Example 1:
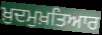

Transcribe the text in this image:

ਖ਼ੁਦਮੁਖ਼ਤਿਆਰ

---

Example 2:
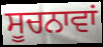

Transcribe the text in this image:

ਸੂਚਨਾਵਾਂ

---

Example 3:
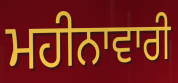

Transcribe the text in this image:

ਮਹੀਨਾਵਾਰੀ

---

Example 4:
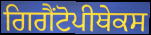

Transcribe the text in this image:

ਗਿਗੈਂਟੋਪੀਥੇਕਸ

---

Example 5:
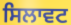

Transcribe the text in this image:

ਸਿਲਾਵਟ